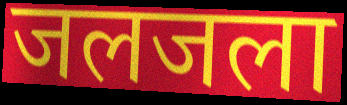
जलजला